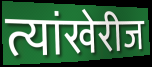
त्यांखेरीज